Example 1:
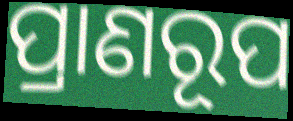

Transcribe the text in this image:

ପ୍ରାଣରୂପ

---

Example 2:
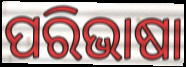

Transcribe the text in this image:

ପରିଭାଷା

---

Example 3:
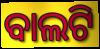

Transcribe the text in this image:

ବାଲଟି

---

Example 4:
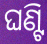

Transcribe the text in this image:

ଘଣ୍ଟି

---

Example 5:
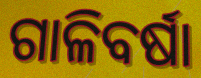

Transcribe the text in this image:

ଗାଳିବର୍ଷା